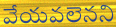
వేయవలెనని